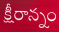
క్షీరాన్నం